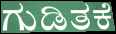
ಗುಡಿತಕೆ